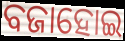
ବଜାହୋଇ